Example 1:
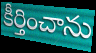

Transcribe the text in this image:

కీర్తించాను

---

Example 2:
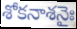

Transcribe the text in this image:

శోకనాశనైః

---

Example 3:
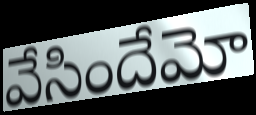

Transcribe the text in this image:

వేసిందేమో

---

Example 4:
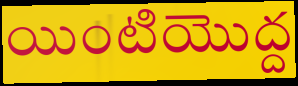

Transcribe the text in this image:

యింటియొద్ద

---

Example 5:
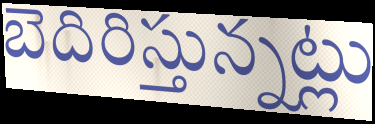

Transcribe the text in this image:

బెదిరిస్తున్నట్లు